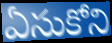
ఏసుకోని